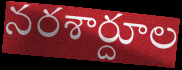
నరశార్దూల